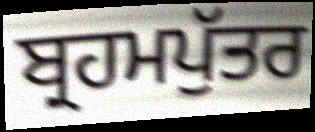
ਬ੍ਰਹਮਪੁੱਤਰ